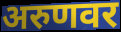
अरुणवर